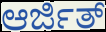
ಆರ್ಜಿತ್